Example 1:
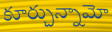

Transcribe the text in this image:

కూర్చున్నామో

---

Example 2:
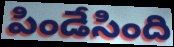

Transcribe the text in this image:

పిండేసింది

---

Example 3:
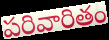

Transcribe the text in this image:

పరివారితం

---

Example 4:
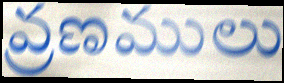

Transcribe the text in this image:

వ్రణములు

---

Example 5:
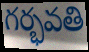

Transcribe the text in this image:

గర్భవతి